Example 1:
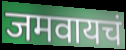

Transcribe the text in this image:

जमवायचं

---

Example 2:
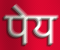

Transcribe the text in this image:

पेय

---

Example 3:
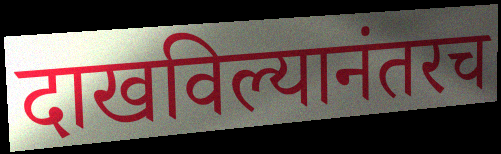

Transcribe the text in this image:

दाखविल्यानंतरच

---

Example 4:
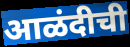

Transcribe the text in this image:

आळंदीची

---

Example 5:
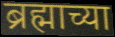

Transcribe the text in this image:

ब्रह्माच्या